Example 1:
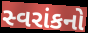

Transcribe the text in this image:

સ્વરાંકનો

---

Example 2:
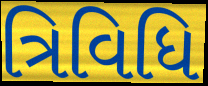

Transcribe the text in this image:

ત્રિવિધિ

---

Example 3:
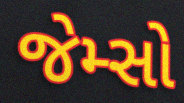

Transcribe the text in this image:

જેમ્સો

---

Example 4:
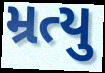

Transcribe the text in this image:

મ્રત્યુ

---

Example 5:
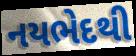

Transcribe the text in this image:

નયભેદથી